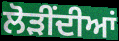
ਲੋੜੀਂਦੀਆਂ